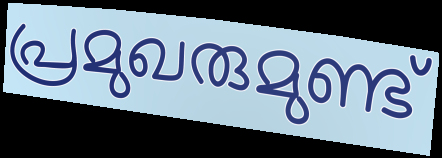
പ്രമുഖരുമുണ്ട്